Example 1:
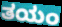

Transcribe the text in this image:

ತಯಂ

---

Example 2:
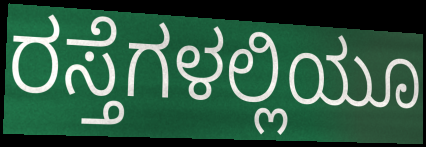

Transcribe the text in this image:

ರಸ್ತೆಗಳಲ್ಲಿಯೂ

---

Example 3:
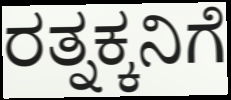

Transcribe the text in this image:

ರತ್ನಕ್ಕನಿಗೆ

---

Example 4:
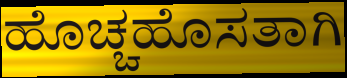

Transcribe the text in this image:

ಹೊಚ್ಚಹೊಸತಾಗಿ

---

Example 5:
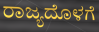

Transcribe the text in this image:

ರಾಜ್ಯದೊಳಗೆ